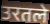
उरतले